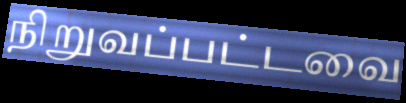
நிறுவப்பட்டவை